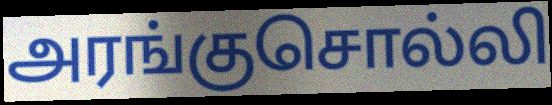
அரங்குசொல்லி